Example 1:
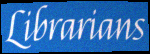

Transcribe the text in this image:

Librarians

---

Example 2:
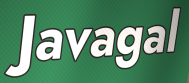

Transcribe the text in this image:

Javagal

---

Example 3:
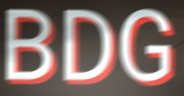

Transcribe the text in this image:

BDG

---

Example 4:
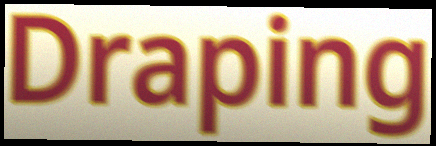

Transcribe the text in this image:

Draping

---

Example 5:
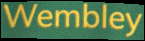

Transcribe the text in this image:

Wembley